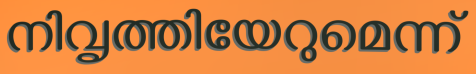
നിവൃത്തിയേറുമെന്ന്